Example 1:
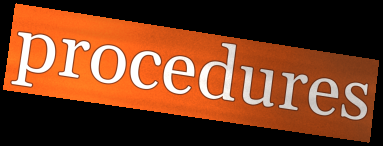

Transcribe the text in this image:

procedures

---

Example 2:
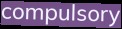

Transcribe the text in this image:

compulsory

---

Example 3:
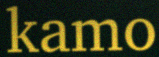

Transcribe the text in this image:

kamo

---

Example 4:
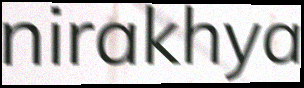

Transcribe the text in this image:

nirakhya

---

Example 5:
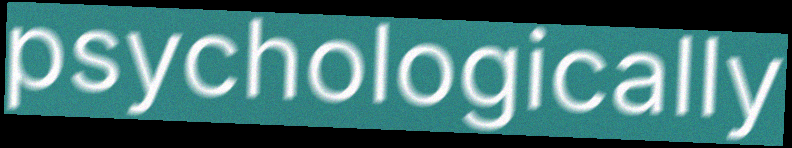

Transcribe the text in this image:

psychologically